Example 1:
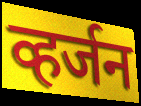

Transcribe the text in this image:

व्हर्जन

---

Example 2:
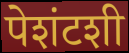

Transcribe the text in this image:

पेशंटशी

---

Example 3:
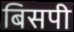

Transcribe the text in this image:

बिसपी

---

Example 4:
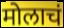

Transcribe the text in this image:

मोलाचं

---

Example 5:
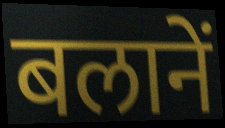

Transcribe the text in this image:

बलानें